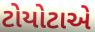
ટોયોટાએ